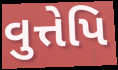
વુત્તેપિ